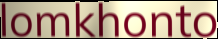
lomkhonto